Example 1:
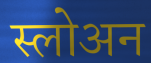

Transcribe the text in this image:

स्लोअन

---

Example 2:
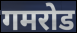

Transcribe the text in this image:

गमरोड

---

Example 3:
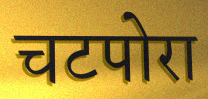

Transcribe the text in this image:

चटपोरा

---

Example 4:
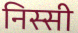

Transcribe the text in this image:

निस्सी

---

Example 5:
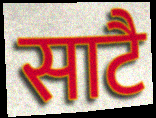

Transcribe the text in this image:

साटै